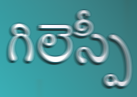
గిలెస్పీ